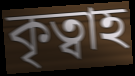
কৃত্বাহ